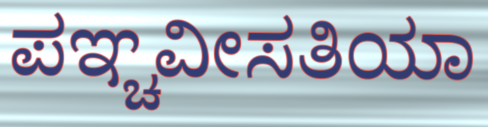
ಪಞ್ಚವೀಸತಿಯಾ